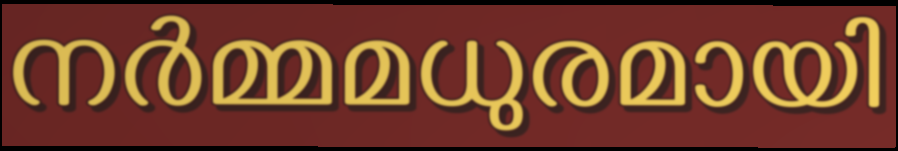
നർമ്മമധുരമായി